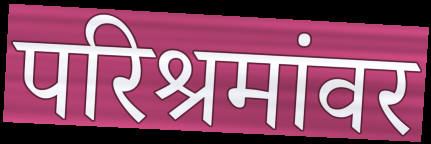
परिश्रमांवर